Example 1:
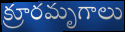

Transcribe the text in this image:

క్రూరమృగాలు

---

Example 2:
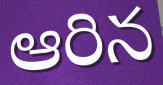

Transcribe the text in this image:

ఆరిన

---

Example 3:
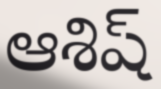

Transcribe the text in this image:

ఆశిష్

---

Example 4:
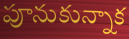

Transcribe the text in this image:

పూనుకున్నాక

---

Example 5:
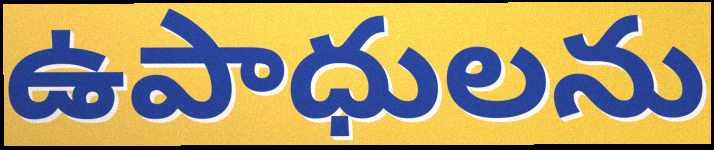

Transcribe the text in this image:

ఉపాధులను